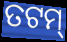
ତଟମ୍